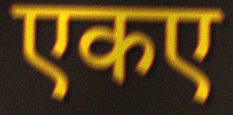
एकए